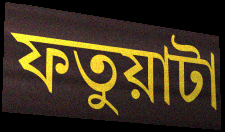
ফতুয়াটা